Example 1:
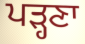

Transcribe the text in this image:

ਪੜ੍ਹਣਾ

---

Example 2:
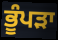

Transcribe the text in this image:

ਭੂੰਪੜਾ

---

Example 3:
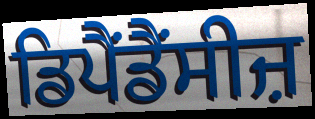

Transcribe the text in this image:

ਡਿਪੈਂਡੈਂਸੀਜ਼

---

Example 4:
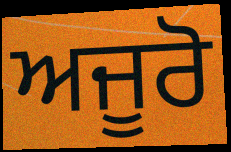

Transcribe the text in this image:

ਅਜੂਰੋ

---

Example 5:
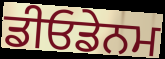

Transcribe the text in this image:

ਡੀਓਡੇਨਮ